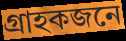
গ্ৰাহকজনে